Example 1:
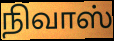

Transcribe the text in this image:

நிவாஸ்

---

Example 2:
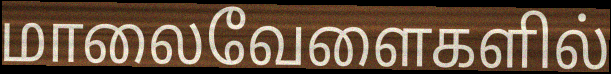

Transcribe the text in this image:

மாலைவேளைகளில்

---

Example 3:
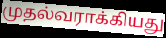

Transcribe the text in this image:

முதல்வராக்கியது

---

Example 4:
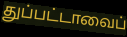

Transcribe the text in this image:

துப்பட்டாவைப்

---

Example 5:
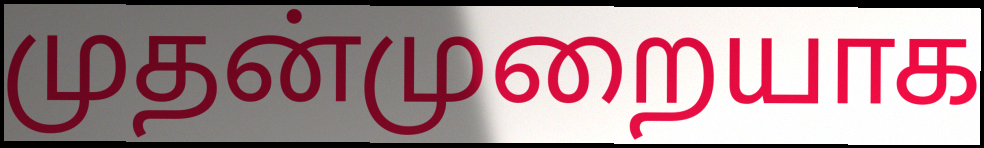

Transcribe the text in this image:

முதன்முறையாக